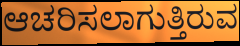
ಆಚರಿಸಲಾಗುತ್ತಿರುವ